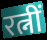
रत्नीं